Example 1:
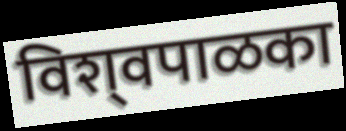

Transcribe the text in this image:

विश्वपाळका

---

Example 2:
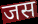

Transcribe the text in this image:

जस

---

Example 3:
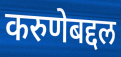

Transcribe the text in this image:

करुणेबद्दल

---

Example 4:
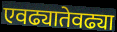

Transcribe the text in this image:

एवढ्यातेवढ्या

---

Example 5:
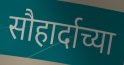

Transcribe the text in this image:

सौहार्दाच्या